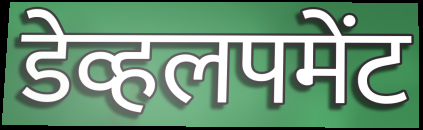
डेव्‍हलपमेंट